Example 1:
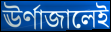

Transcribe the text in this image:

ঊর্ণাজালেই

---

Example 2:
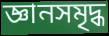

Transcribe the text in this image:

জ্ঞানসমৃদ্ধ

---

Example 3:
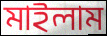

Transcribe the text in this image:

মাইলাম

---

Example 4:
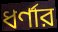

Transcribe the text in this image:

ধর্ণার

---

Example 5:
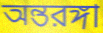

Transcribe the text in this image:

অন্তরঙ্গা